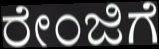
ರೇಂಜಿಗೆ